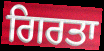
ਗਿਰਤਾ